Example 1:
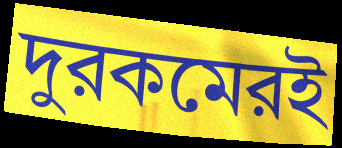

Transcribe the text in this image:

দুরকমেরই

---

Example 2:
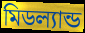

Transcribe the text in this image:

মিডল্যান্ড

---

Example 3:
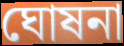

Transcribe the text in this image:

ঘোষনা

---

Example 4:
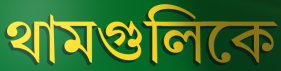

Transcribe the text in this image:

থামগুলিকে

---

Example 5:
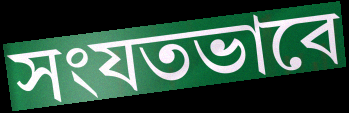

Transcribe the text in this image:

সংযতভাবে